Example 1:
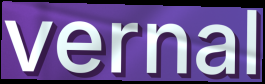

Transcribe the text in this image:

vernal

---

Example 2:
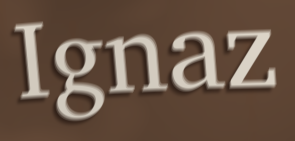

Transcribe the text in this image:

Ignaz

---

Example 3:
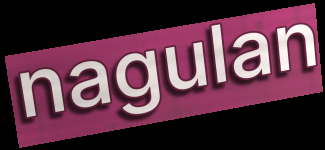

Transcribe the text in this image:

nagulan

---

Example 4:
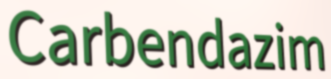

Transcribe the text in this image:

Carbendazim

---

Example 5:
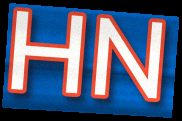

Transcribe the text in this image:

HN